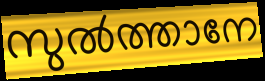
സുൽത്താനേ